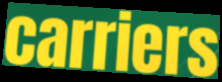
carriers